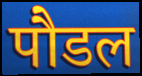
पौडल